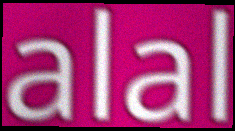
alal